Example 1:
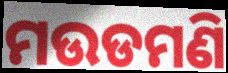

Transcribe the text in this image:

ମଉଡମଣି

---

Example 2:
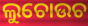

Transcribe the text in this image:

ଲୁଚୋଉଚ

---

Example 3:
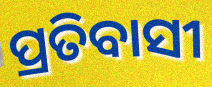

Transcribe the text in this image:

ପ୍ରତିବାସୀ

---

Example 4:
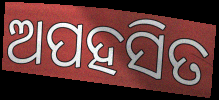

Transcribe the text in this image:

ଅପହସିତ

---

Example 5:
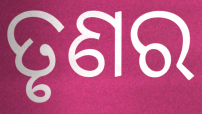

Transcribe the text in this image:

ତୃଣର